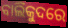
ବାଲିକୁଦରେ